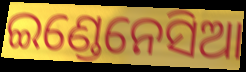
ଇଣ୍ଡେନେସିଆ